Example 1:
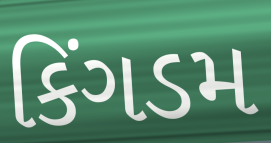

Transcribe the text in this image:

કિંગડમ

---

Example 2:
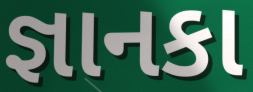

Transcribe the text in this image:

જ્ઞાનકા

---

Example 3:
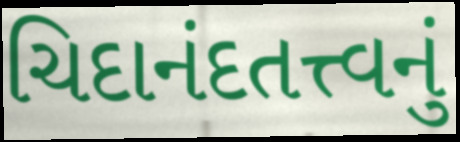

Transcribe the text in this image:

ચિદાનંદતત્ત્વનું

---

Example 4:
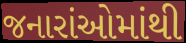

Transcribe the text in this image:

જનારાંઓમાંથી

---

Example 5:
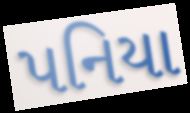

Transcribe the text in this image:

પનિયા